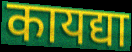
कायद्या